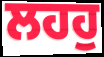
ਲਹਹੁ